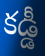
కడ్డీ